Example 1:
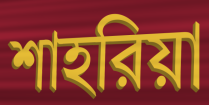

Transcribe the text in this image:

শাহরিয়া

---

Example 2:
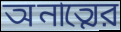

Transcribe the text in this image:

অনাত্মের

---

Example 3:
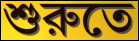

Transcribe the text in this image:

শুরুতে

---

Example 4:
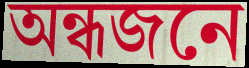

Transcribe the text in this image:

অন্ধজনে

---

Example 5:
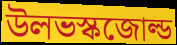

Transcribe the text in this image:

উলভস্কজোল্ড